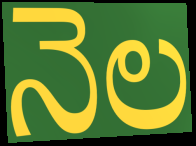
నెల